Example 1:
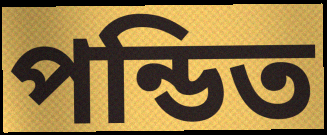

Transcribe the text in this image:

পন্ডিত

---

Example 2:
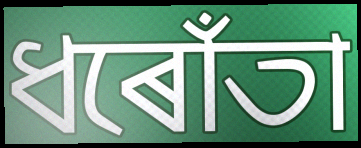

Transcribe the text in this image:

ধৰোঁতা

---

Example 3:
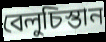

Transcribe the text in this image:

বেলুচিস্তান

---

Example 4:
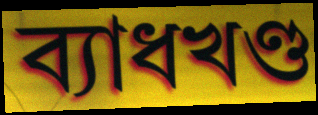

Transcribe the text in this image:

ব্যাধখণ্ড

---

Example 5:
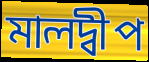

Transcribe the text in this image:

মালদ্বীপ